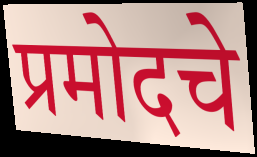
प्रमोदचे